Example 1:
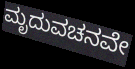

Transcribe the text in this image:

ಮೃದುವಚನವೇ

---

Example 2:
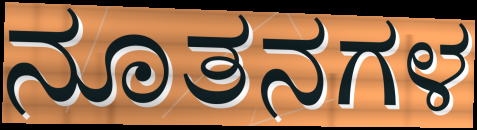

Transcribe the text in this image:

ನೂತನಗಳ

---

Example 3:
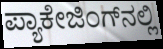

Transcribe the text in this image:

ಪ್ಯಾಕೇಜಿಂಗ್‌ನಲ್ಲಿ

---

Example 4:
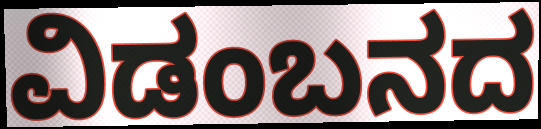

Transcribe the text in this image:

ವಿಡಂಬನದ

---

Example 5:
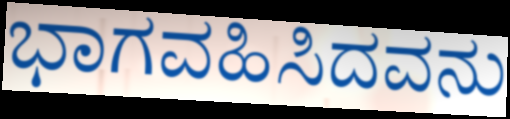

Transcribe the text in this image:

ಭಾಗವಹಿಸಿದವನು